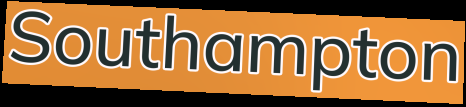
Southampton